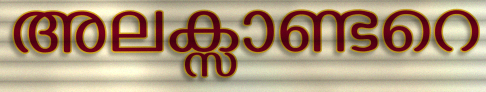
അലക്സാണ്ടറെ